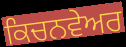
ਕਿਚਨਵੇਅਰ